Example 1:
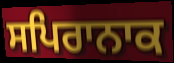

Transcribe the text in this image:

ਸਪਿਰਾਨਾਕ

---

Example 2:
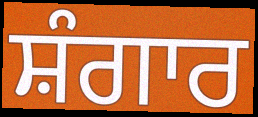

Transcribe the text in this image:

ਸ਼ੰਗਾਰ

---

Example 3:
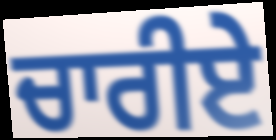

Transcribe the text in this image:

ਚਾਰੀਏ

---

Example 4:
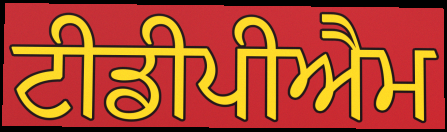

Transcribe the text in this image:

ਟੀਡੀਪੀਐਮ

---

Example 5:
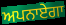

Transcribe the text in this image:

ਅਪਨਾਏਗਾ